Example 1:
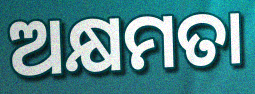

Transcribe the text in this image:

ଅକ୍ଷମତା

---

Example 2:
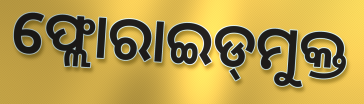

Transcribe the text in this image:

ଫ୍ଲୋରାଇଡ୍‌ମୁକ୍ତ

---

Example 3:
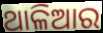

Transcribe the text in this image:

ଥାଳିଆର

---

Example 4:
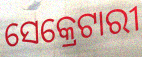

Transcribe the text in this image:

ସେକ୍ରେଟାରୀ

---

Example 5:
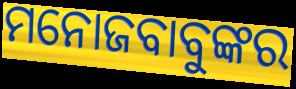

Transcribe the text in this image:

ମନୋଜବାବୁଙ୍କର